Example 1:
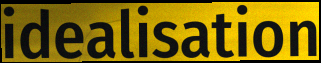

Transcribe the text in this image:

idealisation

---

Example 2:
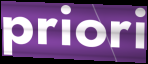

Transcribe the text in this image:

priori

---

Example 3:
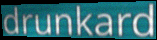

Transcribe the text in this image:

drunkard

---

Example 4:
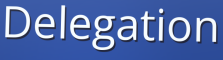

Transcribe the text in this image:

Delegation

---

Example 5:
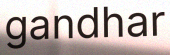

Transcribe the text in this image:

gandhar